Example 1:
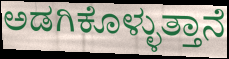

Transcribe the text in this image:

ಅಡಗಿಕೊಳ್ಳುತ್ತಾನೆ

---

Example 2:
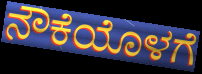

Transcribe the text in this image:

ನೌಕೆಯೊಳಗೆ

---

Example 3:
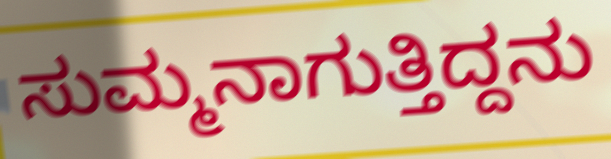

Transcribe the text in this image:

ಸುಮ್ಮನಾಗುತ್ತಿದ್ದನು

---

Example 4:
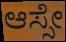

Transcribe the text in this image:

ಆಸ್ಸೇ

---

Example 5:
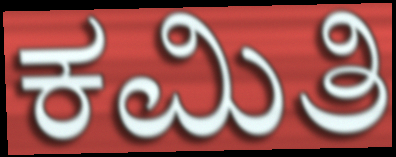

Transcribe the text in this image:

ಕಮಿತಿ